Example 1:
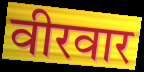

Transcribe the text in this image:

वीरवार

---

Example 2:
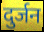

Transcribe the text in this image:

दुर्जन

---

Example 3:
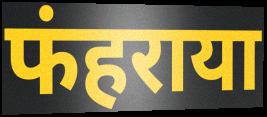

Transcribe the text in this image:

फंहराया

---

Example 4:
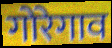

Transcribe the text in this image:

गोरेगाव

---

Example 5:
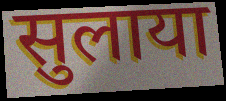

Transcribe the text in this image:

सुलाया